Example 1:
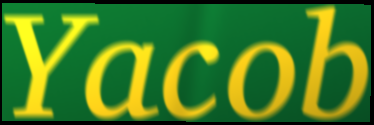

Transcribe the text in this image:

Yacob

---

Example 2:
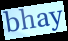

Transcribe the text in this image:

bhay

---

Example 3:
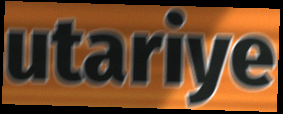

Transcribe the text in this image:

utariye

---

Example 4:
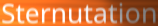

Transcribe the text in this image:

Sternutation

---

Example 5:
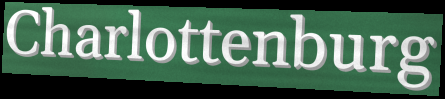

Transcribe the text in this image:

Charlottenburg